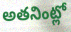
అతనింట్లో